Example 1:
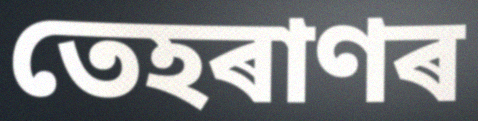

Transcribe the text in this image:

তেহৰাণৰ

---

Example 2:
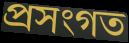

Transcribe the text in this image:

প্ৰসংগত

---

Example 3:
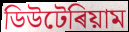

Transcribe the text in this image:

ডিউটেৰিয়াম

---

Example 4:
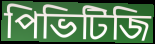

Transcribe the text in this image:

পিভিটিজি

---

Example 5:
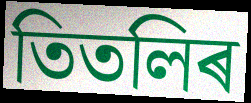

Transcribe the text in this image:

তিতলিৰ